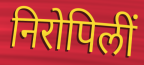
निरोपिलीं